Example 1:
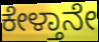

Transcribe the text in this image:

ಕೇಳ್ತಾನೇ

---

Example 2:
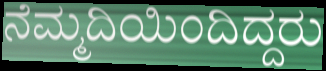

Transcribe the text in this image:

ನೆಮ್ಮದಿಯಿಂದಿದ್ದರು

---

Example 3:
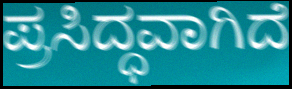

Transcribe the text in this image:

ಪ್ರಸಿದ್ಧವಾಗಿದೆ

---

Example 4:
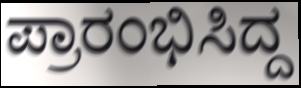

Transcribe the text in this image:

ಪ್ರಾರಂಭಿಸಿದ್ದ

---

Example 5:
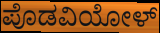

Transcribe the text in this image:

ಪೊಡವಿಯೋಳ್